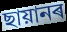
ছায়ানৰ